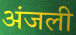
अंजली